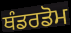
ਥੰਡਰਡੋਮ